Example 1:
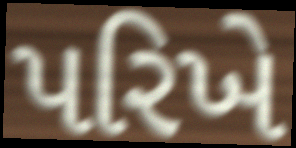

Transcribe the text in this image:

પરિખે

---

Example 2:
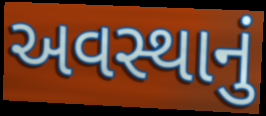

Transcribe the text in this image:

અવસ્થાનું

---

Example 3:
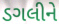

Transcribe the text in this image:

ડગલીને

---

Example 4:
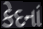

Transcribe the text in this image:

કેદનાં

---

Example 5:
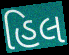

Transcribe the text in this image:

હિલ